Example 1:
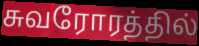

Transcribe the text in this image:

சுவரோரத்தில்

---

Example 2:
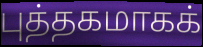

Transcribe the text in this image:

புத்தகமாகக்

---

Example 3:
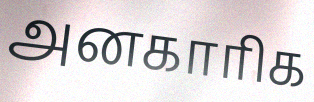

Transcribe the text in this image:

அனகாரிக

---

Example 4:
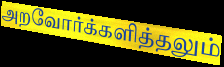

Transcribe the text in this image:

அறவோர்க்களித்தலும்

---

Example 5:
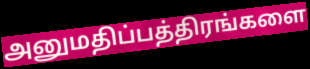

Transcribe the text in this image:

அனுமதிப்பத்திரங்களை